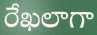
రేఖలాగా